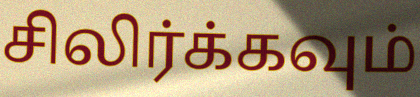
சிலிர்க்கவும்